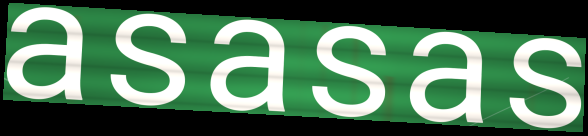
asasas